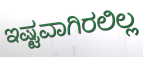
ಇಷ್ಟವಾಗಿರಲಿಲ್ಲ